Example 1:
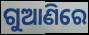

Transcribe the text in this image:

ଗୁଆଣିରେ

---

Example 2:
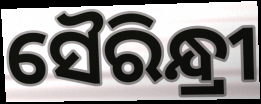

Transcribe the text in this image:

ସୈରିନ୍ଧ୍ରୀ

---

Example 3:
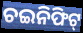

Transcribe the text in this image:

ଚଇନିଫିଟ୍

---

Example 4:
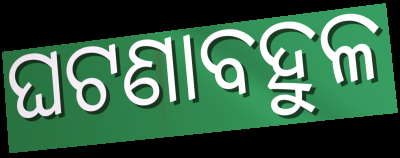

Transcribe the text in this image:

ଘଟଣାବହୁଳ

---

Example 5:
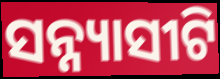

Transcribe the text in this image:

ସନ୍ନ୍ୟାସୀଟି